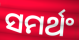
ସମର୍ଥଂ